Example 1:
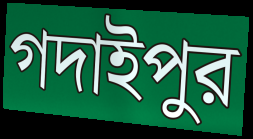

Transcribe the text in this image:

গদাইপুর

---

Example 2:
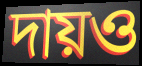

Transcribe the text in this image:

দায়ও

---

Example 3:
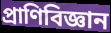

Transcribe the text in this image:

প্রাণিবিজ্ঞান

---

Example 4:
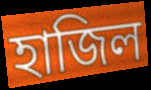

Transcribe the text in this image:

হাজিল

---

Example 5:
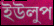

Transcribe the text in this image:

ইউলুপ